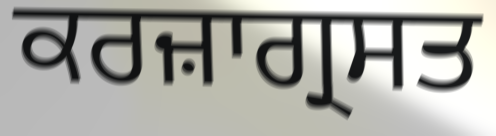
ਕਰਜ਼ਾਗ੍ਰਸਤ